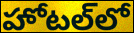
హోటల్‌లో